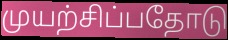
முயற்சிப்பதோடு